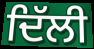
ਦਿੱਲੀ